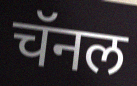
चॅनल